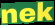
nek